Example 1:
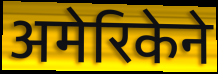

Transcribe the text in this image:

अमेरिकेने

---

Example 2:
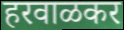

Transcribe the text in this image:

हरवाळकर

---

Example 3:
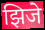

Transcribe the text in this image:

झिजे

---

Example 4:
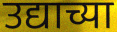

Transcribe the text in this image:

उद्याच्या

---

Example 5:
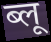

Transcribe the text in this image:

ब्लू